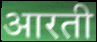
आरती